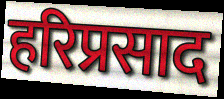
हरिप्रसाद